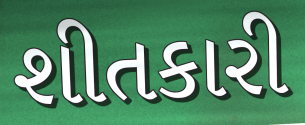
શીતકારી